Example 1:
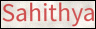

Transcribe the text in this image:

Sahithya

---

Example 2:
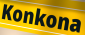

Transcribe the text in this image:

Konkona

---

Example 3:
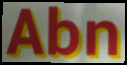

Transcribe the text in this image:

Abn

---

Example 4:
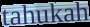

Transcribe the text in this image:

tahukah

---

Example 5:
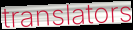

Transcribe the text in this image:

translators